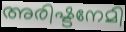
അരിഷ്ടനേമി